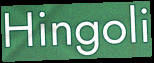
Hingoli